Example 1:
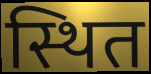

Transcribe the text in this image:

स्थित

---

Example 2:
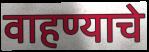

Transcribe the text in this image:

वाहण्याचे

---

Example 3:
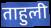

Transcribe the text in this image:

ताहुली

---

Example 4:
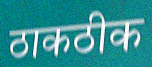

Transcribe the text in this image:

ठाकठीक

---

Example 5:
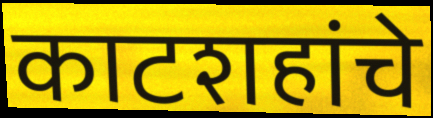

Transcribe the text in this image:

काटशहांचे